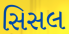
સિસલ